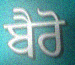
ਬੈਰੋ